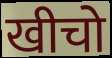
खीचो